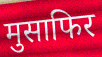
मुसाफिर